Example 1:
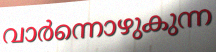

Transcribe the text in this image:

വാർന്നൊഴുകുന്ന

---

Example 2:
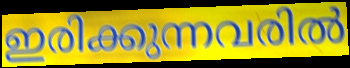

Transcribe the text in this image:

ഇരിക്കുന്നവരിൽ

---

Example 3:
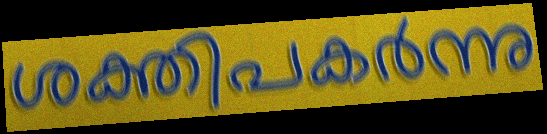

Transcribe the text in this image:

ശക്തിപകർന്നു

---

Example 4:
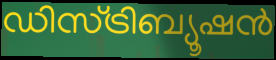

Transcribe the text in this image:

ഡിസ്ട്രിബ്യൂഷൻ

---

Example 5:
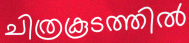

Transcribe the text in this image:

ചിത്രകൂടത്തിൽ